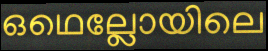
ഒഥെല്ലോയിലെ